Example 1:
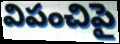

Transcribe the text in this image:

విపంచిపై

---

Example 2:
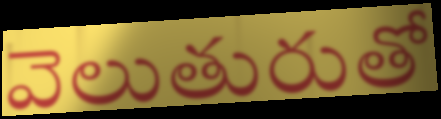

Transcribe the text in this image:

వెలుతురుతో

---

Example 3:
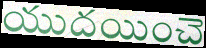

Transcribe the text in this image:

యుదయించె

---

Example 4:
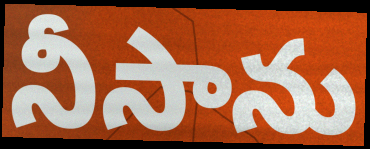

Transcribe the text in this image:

నీసాను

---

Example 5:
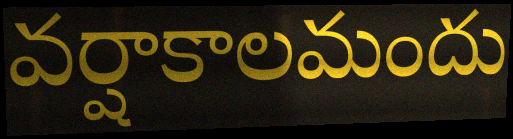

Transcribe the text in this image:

వర్షాకాలమందు